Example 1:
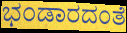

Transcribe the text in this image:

ಭಂಡಾರದಂತೆ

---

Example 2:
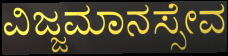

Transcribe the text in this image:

ವಿಜ್ಜಮಾನಸ್ಸೇವ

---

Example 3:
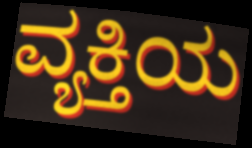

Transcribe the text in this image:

ವ್ಯಕ್ತಿಯ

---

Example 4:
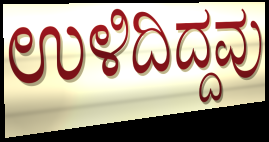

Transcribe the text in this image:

ಉಳಿದಿದ್ದವು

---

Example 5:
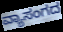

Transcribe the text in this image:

ವ್ಯಾಸಂಗದ